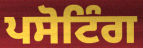
ਪਸੋਟਿੰਗ